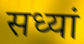
सध्यां